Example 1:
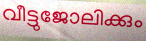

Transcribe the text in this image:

വീട്ടുജോലിക്കും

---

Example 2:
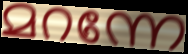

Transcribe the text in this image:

മറന്നേ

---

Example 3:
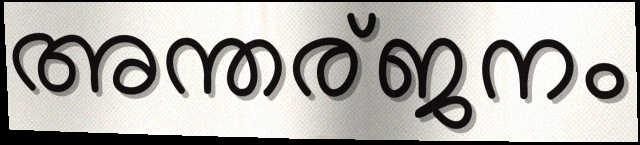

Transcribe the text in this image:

അന്തര്ജനം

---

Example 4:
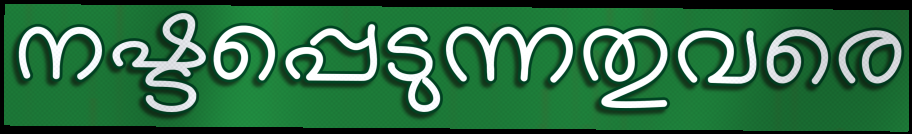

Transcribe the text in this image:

നഷ്ടപ്പെടുന്നതുവരെ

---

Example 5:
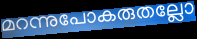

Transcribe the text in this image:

മറന്നുപോകരുതല്ലോ